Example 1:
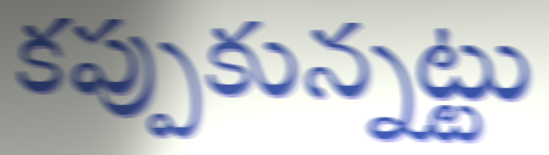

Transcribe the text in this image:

కప్పుకున్నట్టు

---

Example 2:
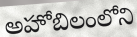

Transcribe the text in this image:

అహోబిలంలోని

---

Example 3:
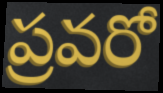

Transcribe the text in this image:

ప్రవరో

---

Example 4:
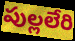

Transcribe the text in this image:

పుల్లలేరి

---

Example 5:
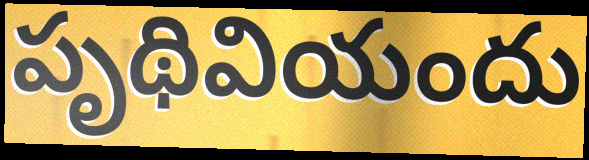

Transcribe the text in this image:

పృథివియందు